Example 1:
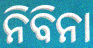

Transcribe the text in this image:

ନିବିନା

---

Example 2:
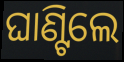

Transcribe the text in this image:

ଘାଣ୍ଟିଲେ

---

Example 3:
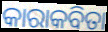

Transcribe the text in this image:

କାରାକବିତା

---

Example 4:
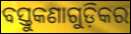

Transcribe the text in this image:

ବସ୍ତୁକଣାଗୁଡ଼ିକର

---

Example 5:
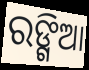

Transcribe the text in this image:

ରଙ୍ଗିଆ